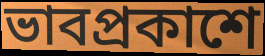
ভাবপ্রকাশে